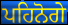
ਪਹਿਨੋਗੇ